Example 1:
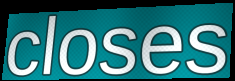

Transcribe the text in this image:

closes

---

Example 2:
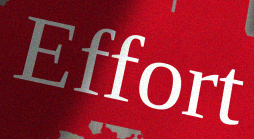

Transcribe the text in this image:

Effort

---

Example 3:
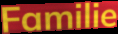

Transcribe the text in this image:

Familie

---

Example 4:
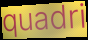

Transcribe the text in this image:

quadri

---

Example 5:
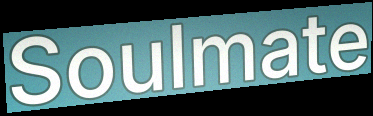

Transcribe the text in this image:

Soulmate